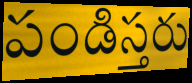
పండిస్తరు